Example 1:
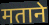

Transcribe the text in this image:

मताने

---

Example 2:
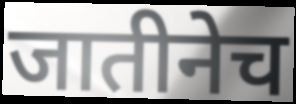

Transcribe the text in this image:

जातीनेच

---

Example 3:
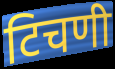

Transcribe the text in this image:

टिचणी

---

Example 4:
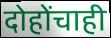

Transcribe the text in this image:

दोहोंचाही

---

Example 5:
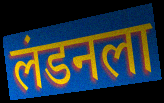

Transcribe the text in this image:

लंडनला